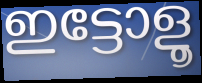
ഇട്ടോളൂ